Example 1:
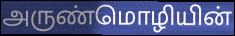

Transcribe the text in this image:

அருண்மொழியின்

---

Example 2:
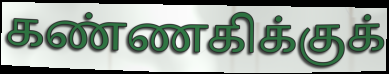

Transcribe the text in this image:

கண்ணகிக்குக்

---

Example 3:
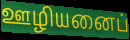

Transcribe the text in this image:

ஊழியனைப்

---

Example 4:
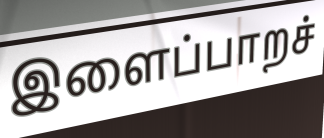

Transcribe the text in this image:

இளைப்பாறச்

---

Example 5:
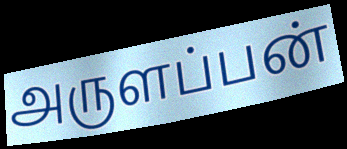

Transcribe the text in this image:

அருளப்பன்